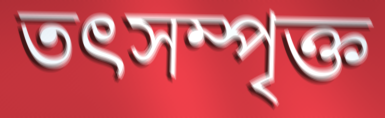
তৎসম্পৃক্ত